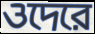
ওদেরে